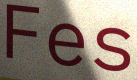
Fes